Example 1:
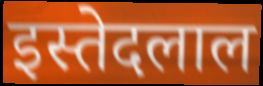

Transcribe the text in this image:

इस्तेदलाल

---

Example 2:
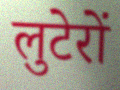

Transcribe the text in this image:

लुटेरों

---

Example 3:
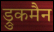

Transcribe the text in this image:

ड्रुकमैन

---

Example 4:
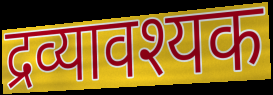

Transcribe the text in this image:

द्रव्यावश्यक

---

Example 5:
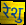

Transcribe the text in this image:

रेशु